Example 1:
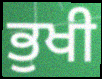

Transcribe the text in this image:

ਭੁਖੀ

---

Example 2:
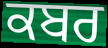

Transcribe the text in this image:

ਕਬਰ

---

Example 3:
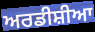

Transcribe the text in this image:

ਅਰਡੀਸ਼ੀਆ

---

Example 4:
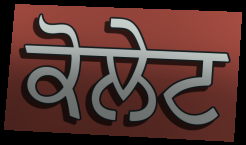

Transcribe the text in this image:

ਕੋਲੇਟ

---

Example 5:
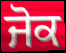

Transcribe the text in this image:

ਜੋਕ